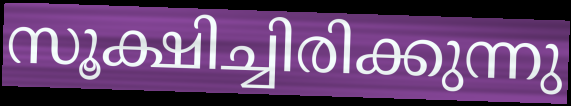
സൂക്ഷിച്ചിരിക്കുന്നു